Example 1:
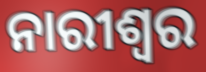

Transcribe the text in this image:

ନାରୀଶ୍ବର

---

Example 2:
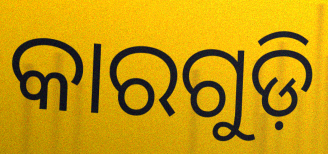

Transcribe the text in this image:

କାରଗୁଡ଼ି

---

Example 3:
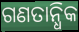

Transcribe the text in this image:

ଗଣତାନ୍ଧିକ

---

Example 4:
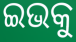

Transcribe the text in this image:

ଇଭକୁ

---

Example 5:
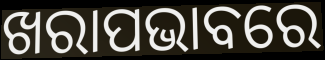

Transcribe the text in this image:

ଖରାପଭାବରେ